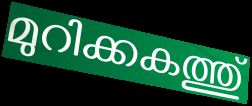
മുറിക്കകത്തു്